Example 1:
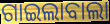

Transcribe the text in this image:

ଗାଇଲାବାଲା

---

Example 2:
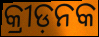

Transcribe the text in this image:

କ୍ରୀଡ଼ନକ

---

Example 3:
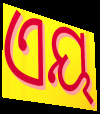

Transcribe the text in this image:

ଏୟ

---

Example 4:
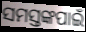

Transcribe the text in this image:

ସମସ୍ତଙ୍କପାଇଁ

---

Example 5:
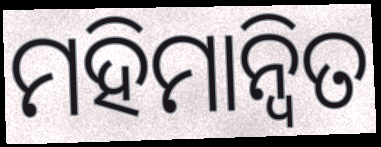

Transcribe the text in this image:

ମହିମାନ୍ୱିତ